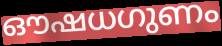
ഔഷധഗുണം